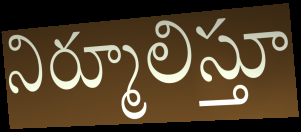
నిర్మూలిస్తూ